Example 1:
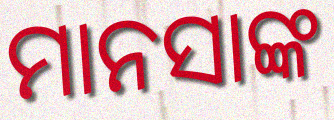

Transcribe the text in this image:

ମାନସାଙ୍କ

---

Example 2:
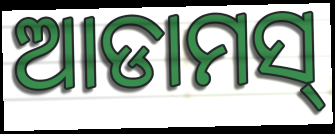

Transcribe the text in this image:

ଆଡାମସ୍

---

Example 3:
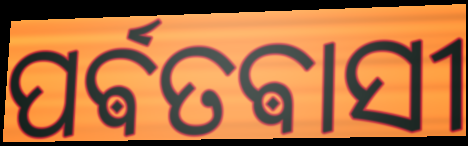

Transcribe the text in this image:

ପର୍ଵତଵାସୀ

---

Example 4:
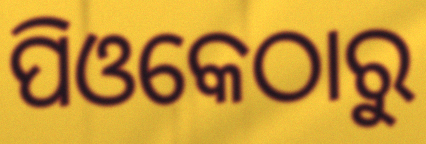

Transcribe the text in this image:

ପିଓକେଠାରୁ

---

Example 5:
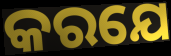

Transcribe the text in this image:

କରଯେ